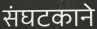
संघटकाने